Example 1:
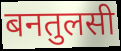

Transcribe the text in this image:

बनतुलसी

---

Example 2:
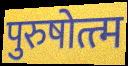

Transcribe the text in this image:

पुरुषोत्त्म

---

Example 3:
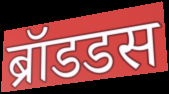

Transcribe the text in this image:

ब्रॉडडस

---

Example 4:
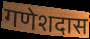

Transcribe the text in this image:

गणेशदास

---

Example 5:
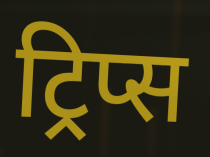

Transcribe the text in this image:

ट्रिप्स